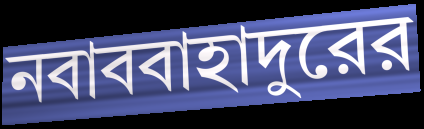
নবাববাহাদুরের